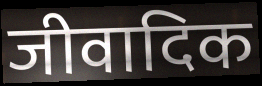
जीवादिक